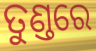
ତୁଣ୍ଡରେ